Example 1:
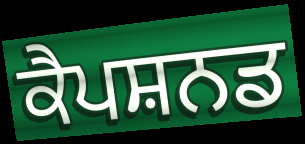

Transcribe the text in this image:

ਕੈਪਸ਼ਨਡ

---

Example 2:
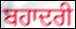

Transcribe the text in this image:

ਬਹਾਦਰੀ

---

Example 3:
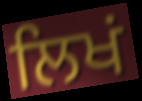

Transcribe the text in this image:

ਲਿਖਂ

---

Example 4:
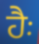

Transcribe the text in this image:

ਹੈਃ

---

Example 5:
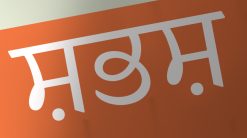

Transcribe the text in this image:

ਸ਼ਭਸ਼